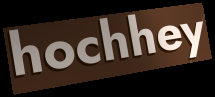
hochhey